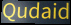
Qudaid